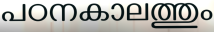
പഠനകാലത്തും